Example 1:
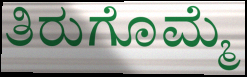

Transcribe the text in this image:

ತಿರುಗೊಮ್ಮೆ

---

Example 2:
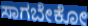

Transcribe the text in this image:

ಸಾಗಬೇಕೋ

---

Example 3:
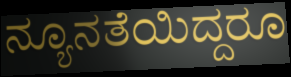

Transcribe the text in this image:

ನ್ಯೂನತೆಯಿದ್ದರೂ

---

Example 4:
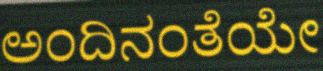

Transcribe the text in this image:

ಅಂದಿನಂತೆಯೇ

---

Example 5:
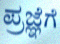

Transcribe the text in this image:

ಪ್ರಜ್ಞೆಗೆ